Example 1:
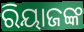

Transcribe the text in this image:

ରିୟାଜଙ୍କ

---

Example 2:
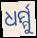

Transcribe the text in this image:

ଧର୍ମ୍ମୁ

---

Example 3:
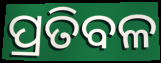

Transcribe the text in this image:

ପ୍ରତିବଳ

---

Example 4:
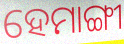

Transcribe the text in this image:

ହେମାଙ୍ଗୀ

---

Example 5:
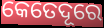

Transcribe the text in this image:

କେତେଦୂରେ